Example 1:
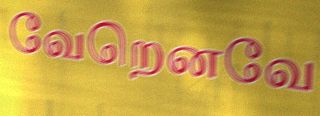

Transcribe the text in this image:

வேறெனவே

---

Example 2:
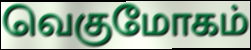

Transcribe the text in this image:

வெகுமோகம்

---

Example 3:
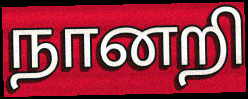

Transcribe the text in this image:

நானறி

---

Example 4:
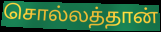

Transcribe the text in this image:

சொல்லத்தான்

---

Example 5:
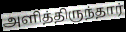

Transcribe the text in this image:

அளித்திருந்தார்